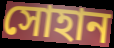
সোহান